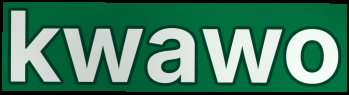
kwawo